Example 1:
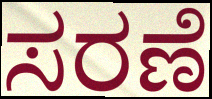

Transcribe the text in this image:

ಸರಣೆ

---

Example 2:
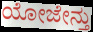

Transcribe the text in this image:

ಯೋಜೇನ್ತು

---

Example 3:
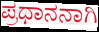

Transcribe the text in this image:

ಪ್ರಧಾನನಾಗಿ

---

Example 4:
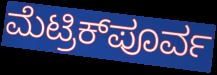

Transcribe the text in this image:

ಮೆಟ್ರಿಕ್‌ಪೂರ್ವ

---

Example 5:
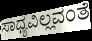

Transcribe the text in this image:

ಸಾಧ್ಯವಿಲ್ಲವಂತೆ